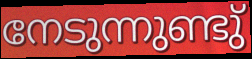
നേടുന്നുണ്ടു്